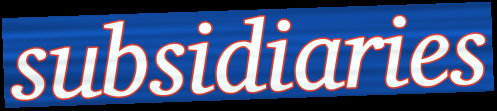
subsidiaries